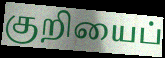
குறியைப்